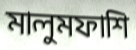
মালুমফাশি